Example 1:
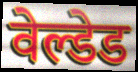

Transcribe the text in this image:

वेल्डेड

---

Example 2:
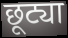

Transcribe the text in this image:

छूट्या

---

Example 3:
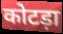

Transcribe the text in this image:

कोटड़ा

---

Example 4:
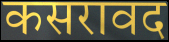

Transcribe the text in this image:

कसरावद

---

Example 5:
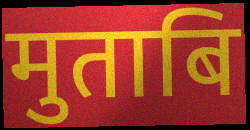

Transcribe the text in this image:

मुताबि